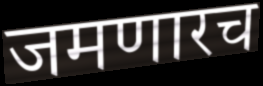
जमणारच